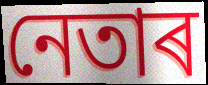
নেতাৰ